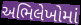
અભિલેખોમાં